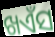
ଖଏଁସ